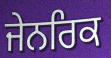
ਜੇਨਰਿਕ